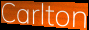
Carlton